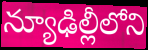
న్యూఢిల్లీలోని